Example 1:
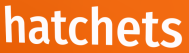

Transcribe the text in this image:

hatchets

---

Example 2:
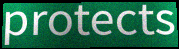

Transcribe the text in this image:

protects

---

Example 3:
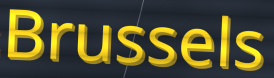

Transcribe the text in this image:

Brussels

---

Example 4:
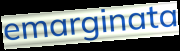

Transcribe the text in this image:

emarginata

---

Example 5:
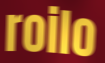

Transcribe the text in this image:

roilo